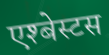
एश्बेस्टस